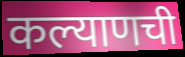
कल्याणची